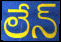
లేన్